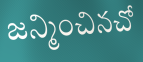
జన్మించినచో